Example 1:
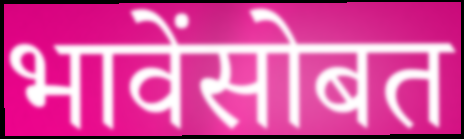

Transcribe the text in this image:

भावेंसोबत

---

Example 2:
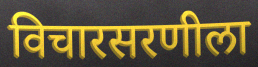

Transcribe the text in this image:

विचारसरणीला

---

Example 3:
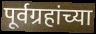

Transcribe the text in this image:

पूर्वग्रहांच्या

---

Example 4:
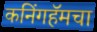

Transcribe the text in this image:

कनिंगहॅमचा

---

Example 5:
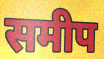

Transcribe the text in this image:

समीप